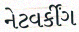
નેટવર્કીંગ